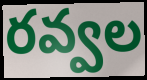
రవ్వల